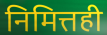
निमित्तही